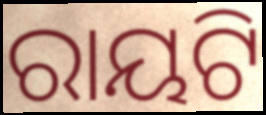
ରାୟଟି